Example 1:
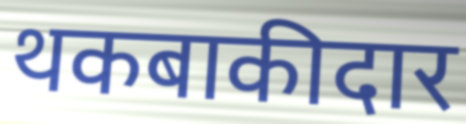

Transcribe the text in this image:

थकबाकीदार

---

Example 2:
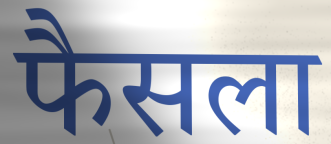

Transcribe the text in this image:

फैसला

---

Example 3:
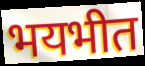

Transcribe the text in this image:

भयभीत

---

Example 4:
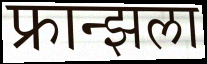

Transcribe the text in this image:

फ्रान्झला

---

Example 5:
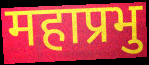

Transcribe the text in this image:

महाप्रभु